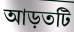
আড়তটি